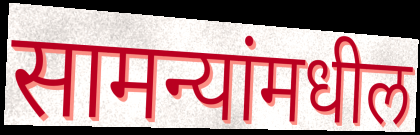
सामन्यांमधील